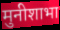
मुनीशाभा